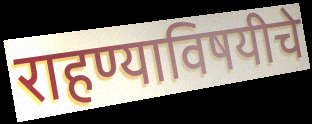
राहण्याविषयीचे